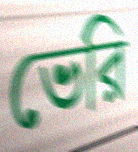
ভেরি